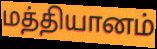
மத்தியானம்